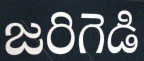
జరిగెడి